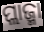
ପ୍ଲାଜ୍ମା